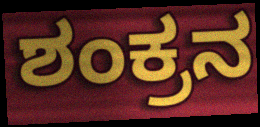
ಶಂಕ್ರನ